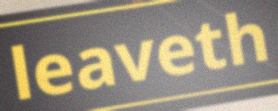
leaveth